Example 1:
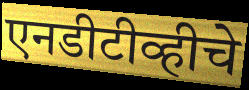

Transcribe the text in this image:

एनडीटीव्हीचे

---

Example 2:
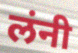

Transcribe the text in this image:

लंनी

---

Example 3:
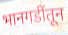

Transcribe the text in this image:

भानगडींतून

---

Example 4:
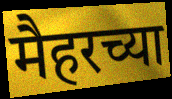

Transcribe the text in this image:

मैहरच्या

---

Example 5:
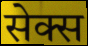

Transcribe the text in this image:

सेक्स